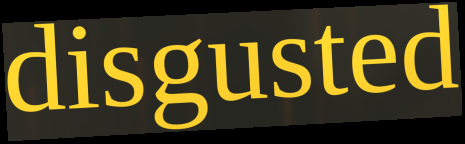
disgusted